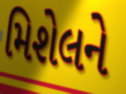
મિશેલને